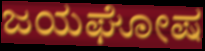
ಜಯಘೋಷ